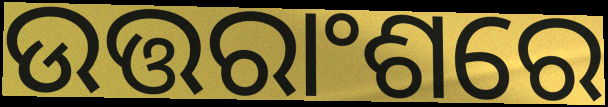
ଉତ୍ତରାଂଶରେ